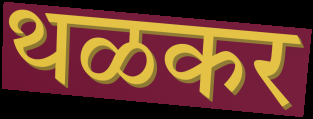
थळकर